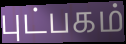
புட்பகம்